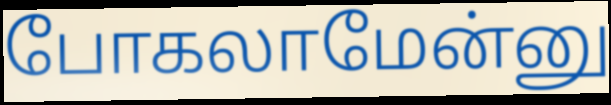
போகலாமேன்னு